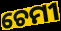
ଚେମୀ